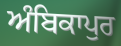
ਅੰਬਿਕਾਪੁਰ